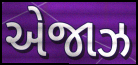
એજાઝ